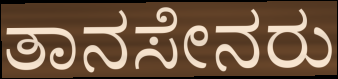
ತಾನಸೇನರು